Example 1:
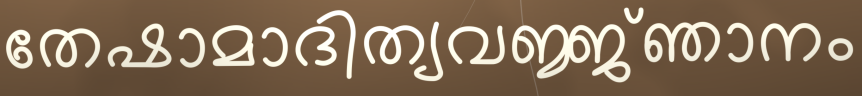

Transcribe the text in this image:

തേഷാമാദിത്യവജ്ജ്ഞാനം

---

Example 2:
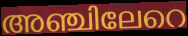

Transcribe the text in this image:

അഞ്ചിലേറെ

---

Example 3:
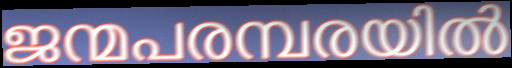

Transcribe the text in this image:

ജന്മപരമ്പരയിൽ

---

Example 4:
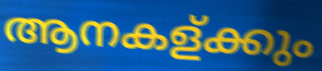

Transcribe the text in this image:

ആനകള്ക്കും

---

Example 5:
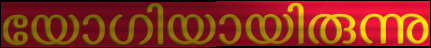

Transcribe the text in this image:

യോഗിയായിരുന്നു